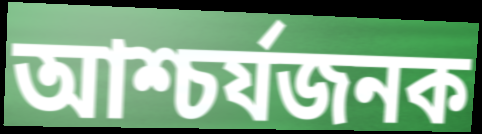
আশ্চর্যজনক